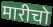
मारीचो